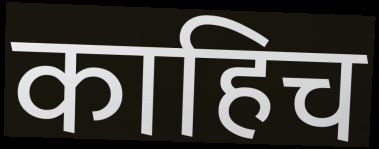
काहिच